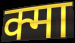
क्मा